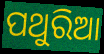
ପଥୁରିଆ